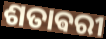
ଶତାଵରୀ